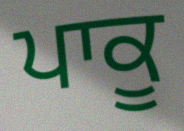
ਪਾਕੂ